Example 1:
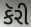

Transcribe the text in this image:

કૅરી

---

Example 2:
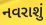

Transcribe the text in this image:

નવરાશું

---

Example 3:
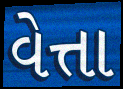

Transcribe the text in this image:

વેત્તા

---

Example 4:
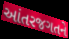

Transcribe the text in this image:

આંતરજગતને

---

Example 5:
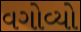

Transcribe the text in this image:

વગોવ્યો